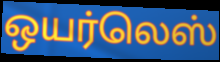
ஒயர்லெஸ்